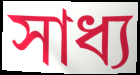
সাধ্য